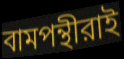
বামপন্থীরাই